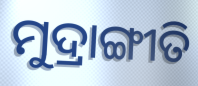
ମୁଦ୍ରାଙ୍ଗୀତି